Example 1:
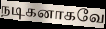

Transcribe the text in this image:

நடிகனாகவே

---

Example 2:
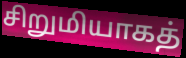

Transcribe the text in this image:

சிறுமியாகத்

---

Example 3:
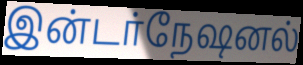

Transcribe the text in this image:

இன்டர்நேஷனல்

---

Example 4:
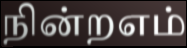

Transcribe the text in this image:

நின்றஎம்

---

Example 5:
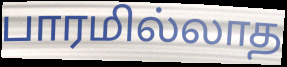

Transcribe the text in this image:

பாரமில்லாத